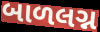
બાળલગ્ન